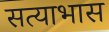
सत्याभास